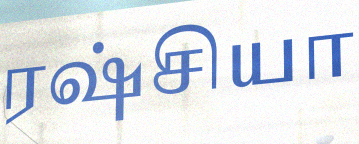
ரஷ்சியா